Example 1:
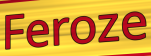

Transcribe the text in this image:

Feroze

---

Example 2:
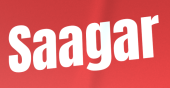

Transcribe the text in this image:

Saagar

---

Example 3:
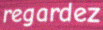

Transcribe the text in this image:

regardez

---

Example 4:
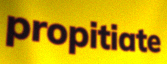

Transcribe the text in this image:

propitiate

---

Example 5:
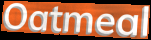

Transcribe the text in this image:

Oatmeal